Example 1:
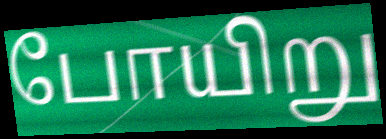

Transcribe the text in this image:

போயிறு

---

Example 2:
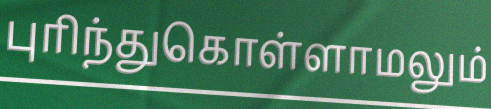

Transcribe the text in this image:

புரிந்துகொள்ளாமலும்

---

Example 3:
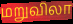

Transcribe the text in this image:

மறுவிலா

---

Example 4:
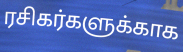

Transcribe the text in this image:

ரசிகர்களுக்காக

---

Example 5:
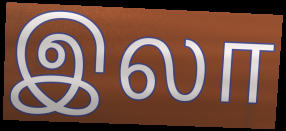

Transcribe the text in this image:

இலா